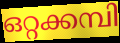
ഒറ്റക്കമ്പി